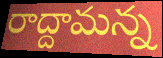
రాద్దామన్న